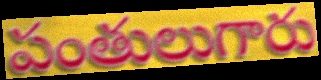
పంతులుగారు